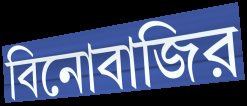
বিনোবাজির